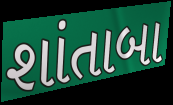
શાંતાબા